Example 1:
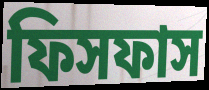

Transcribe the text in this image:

ফিসফাস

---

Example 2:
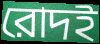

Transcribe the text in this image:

রোদই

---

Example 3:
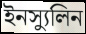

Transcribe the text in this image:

ইনস্যুলিন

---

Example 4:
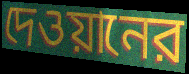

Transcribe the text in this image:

দেওয়ানের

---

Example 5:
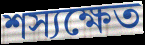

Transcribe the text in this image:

শস্যক্ষেত